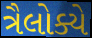
ત્રૈલોક્યે